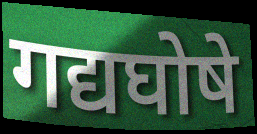
गद्यघोषे